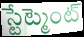
స్టేట్మెంట్